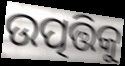
ଉତ୍ପତ୍ତିକୁ